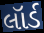
લૉર્ડ